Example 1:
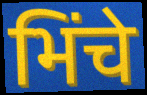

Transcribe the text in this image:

भिंचे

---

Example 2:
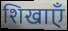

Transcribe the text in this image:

शिखाएँ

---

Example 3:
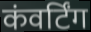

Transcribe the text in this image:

कंवर्टिंग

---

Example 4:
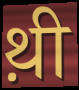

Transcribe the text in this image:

थ़ी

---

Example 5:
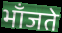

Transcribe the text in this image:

भाँजते